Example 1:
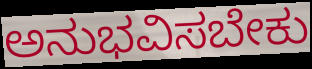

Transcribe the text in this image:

ಅನುಭವಿಸಬೇಕು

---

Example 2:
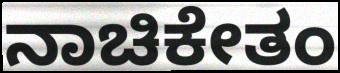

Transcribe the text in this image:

ನಾಚಿಕೇತಂ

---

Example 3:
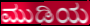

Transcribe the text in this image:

ಮುಡಿಯ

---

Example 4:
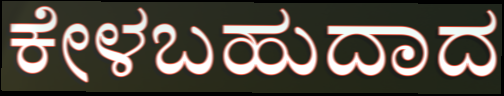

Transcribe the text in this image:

ಕೇಳಬಹುದಾದ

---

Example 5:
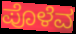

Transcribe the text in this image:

ಪೊಳೆವ